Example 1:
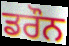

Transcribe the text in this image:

ਡਰੌਨ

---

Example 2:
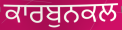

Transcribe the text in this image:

ਕਾਰਬੁਨਕਲ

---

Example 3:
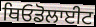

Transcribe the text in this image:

ਥਿਓਡੋਲਾਈਟ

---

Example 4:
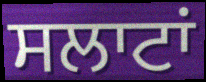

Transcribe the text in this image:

ਸਲਾਟਾਂ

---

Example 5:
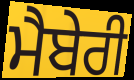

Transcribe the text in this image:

ਮੈਬੇਰੀ